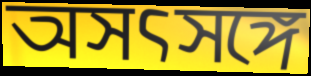
অসৎসঙ্গে